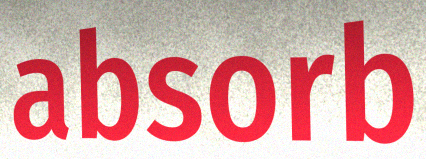
absorb